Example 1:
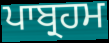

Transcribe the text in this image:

ਪਾਬ੍ਰਹਮ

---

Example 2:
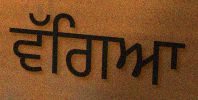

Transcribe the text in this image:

ਵੱਗਿਆ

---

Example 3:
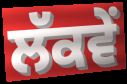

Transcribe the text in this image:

ਲੱਕਵੇਂ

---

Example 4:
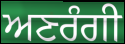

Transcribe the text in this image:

ਅਣਰੰਗੀ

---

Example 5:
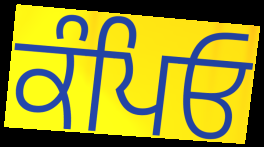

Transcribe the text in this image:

ਕੰਪਿਓ